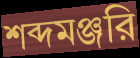
শব্দমঞ্জরি